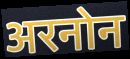
अरनोन